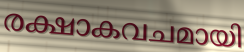
രക്ഷാകവചമായി